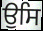
ਉਸਿ